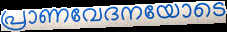
പ്രാണവേദനയോടെ